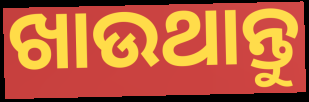
ଖାଉଥାନ୍ତୁ